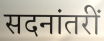
सदनांतरीं